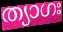
ത്യാഗഃ